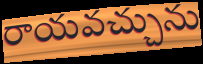
రాయవచ్చును